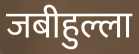
जबीहुल्ला